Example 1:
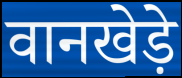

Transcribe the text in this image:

वानखेड़े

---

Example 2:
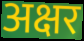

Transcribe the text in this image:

अक्षर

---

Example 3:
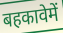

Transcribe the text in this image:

बहकावेमें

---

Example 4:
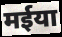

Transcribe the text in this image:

मईया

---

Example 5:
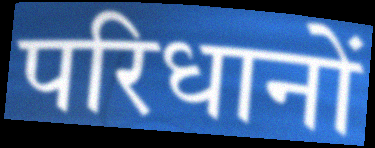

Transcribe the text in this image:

परिधानों